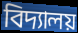
বিদ্যালয়